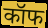
कॉफ